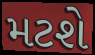
મટશે